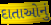
દાતાઓનું